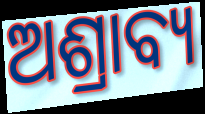
ଅଶ୍ରାବ୍ୟ